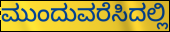
ಮುಂದುವರೆಸಿದಲ್ಲಿ